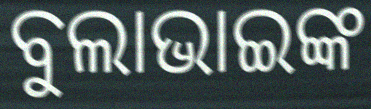
ବୁଲାଭାଇଙ୍କ